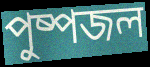
পুষ্পজল